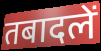
तबादलें